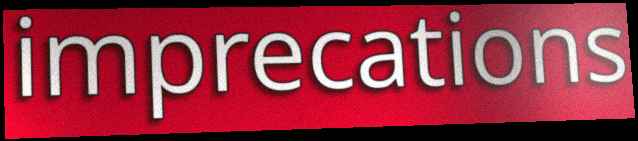
imprecations